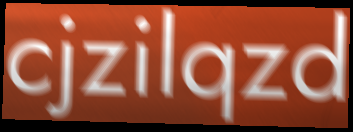
cjzilqzd